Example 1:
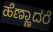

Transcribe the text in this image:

ಹೆಣ್ಣಾದರೆ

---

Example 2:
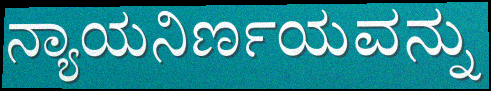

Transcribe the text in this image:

ನ್ಯಾಯನಿರ್ಣಯವನ್ನು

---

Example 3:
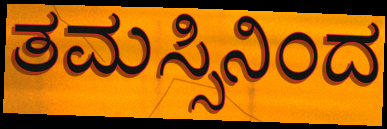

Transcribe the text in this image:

ತಮಸ್ಸಿನಿಂದ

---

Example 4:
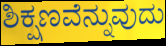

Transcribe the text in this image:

ಶಿಕ್ಷಣವೆನ್ನುವುದು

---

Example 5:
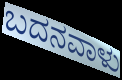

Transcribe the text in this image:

ಬದನವಾಳು